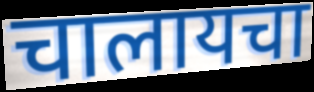
चालायचा